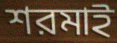
শরমাই